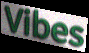
Vibes